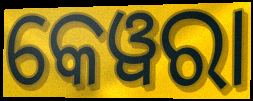
କେୱରା